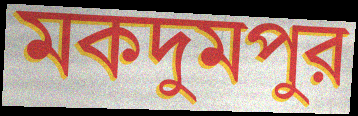
মকদুমপুর